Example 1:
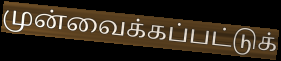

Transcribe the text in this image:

முன்வைக்கப்பட்டுக்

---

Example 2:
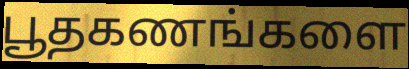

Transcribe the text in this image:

பூதகணங்களை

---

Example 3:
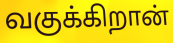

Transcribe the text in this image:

வகுக்கிறான்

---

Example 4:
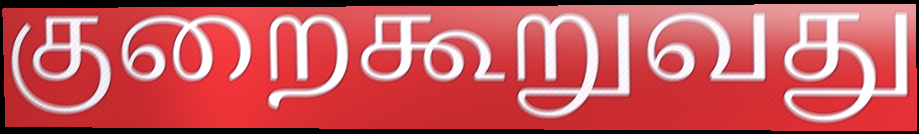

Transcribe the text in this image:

குறைகூறுவது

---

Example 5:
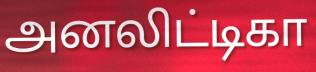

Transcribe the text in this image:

அனலிட்டிகா